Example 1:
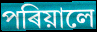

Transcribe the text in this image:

পৰিয়ালে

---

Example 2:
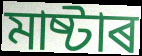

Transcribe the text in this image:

মাষ্টাৰ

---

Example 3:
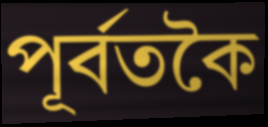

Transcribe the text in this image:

পূৰ্বতকৈ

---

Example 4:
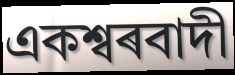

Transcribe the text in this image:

একশ্বৰবাদী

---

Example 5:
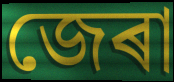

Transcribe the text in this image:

জেৰা